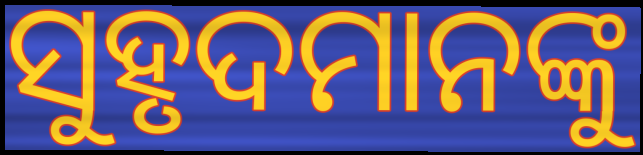
ସୁହୃଦମାନଙ୍କୁ